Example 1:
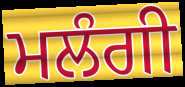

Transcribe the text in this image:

ਮਲੰਗੀ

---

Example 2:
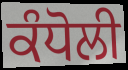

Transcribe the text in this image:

ਕੰਧੋਲੀ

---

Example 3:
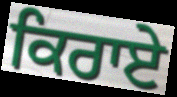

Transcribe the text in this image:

ਕਿਰਾਏ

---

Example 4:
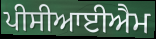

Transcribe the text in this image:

ਪੀਸੀਆਈਐਮ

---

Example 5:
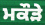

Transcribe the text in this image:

ਮਕੌੜੇ